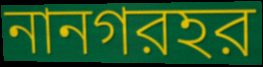
নানগরহর